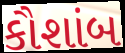
કૌશાંબ